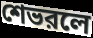
শেভরলে